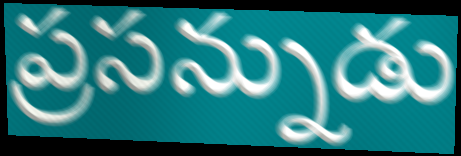
ప్రసన్నుడు